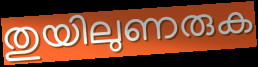
തുയിലുണരുക